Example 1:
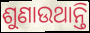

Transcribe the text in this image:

ଶୁଣାଉଥାନ୍ତି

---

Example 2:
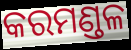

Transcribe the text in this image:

କରମଣ୍ଡଳ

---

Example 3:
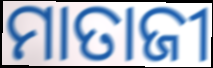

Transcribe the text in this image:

ମାତାଜୀ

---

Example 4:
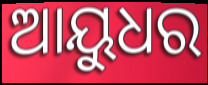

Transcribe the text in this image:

ଆୟୁଧର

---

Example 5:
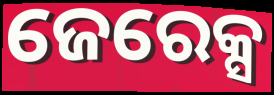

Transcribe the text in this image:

ଜେରେକ୍ସ